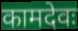
कामदेवः